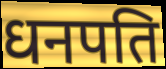
धनपति